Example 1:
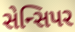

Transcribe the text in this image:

સેન્સિપર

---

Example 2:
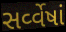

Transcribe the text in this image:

સર્વ્વેષાં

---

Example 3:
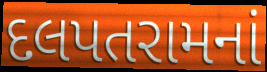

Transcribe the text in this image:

દલપતરામનાં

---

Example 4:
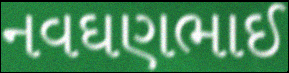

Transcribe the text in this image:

નવઘણભાઈ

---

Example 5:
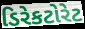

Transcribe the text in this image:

ડિરેકટોરેટ